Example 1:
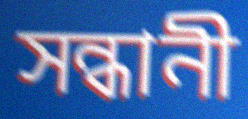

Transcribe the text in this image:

সন্ধানী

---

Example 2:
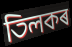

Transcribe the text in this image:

তিলকৰ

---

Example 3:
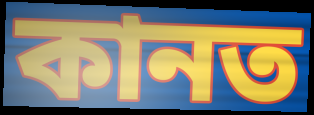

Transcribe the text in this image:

কানত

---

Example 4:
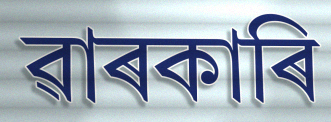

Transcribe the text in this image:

ৱাৰকাৰি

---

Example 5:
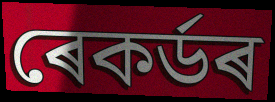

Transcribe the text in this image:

ৰেকৰ্ডৰ